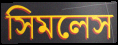
সিমলেস